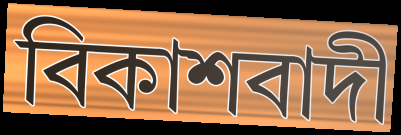
বিকাশবাদী